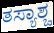
ತಸ್ಯಾಶ್ಚ